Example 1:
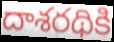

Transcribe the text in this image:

దాశరథికి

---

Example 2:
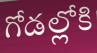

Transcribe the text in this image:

గోడల్లోకి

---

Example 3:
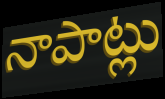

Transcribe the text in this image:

నాపాట్లు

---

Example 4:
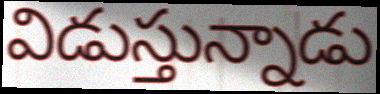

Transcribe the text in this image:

విడుస్తున్నాడు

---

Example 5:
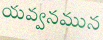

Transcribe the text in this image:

యవ్వనమున